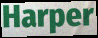
Harper